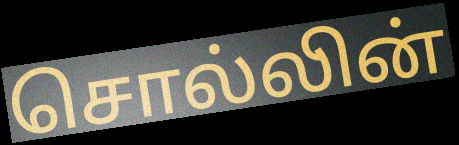
சொல்லின்